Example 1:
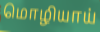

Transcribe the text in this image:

மொழியாய்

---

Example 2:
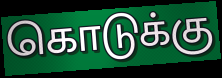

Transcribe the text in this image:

கொடுக்கு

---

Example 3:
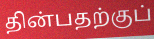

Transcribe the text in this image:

தின்பதற்குப்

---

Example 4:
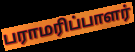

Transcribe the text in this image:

பராமரிப்பாளர்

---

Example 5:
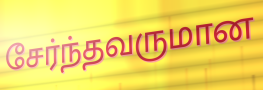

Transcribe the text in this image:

சேர்ந்தவருமான